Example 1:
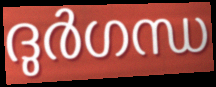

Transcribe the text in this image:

ദുർഗന്ധ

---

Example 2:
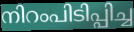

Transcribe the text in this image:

നിറംപിടിപ്പിച്ച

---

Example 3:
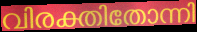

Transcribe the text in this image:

വിരക്തിതോന്നി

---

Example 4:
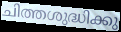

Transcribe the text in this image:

ചിത്തശുദ്ധിക്കു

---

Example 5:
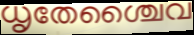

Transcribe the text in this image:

ധൃതേശ്ചൈവ